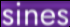
sines